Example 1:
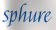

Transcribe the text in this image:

sphure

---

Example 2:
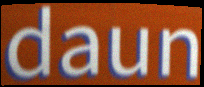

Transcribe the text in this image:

daun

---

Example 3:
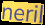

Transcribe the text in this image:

neril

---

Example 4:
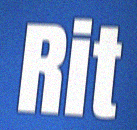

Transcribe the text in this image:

Rit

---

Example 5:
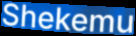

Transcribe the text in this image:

Shekemu